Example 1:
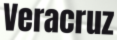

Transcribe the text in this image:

Veracruz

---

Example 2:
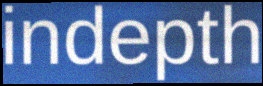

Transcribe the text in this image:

indepth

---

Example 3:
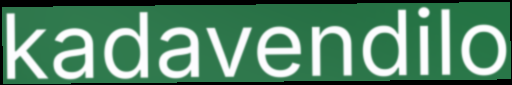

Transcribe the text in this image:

kadavendilo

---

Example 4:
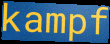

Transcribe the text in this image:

kampf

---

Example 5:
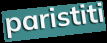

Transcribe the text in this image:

paristiti